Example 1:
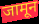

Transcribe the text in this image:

जामून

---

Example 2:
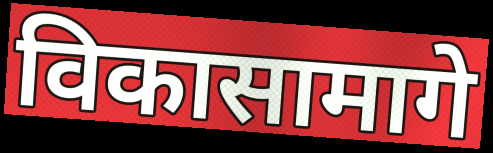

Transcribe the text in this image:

विकासामागे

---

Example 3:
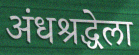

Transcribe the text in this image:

अंधश्रद्धेला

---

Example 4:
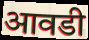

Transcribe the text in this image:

आवडी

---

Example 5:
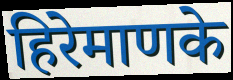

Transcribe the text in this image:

हिरेमाणके